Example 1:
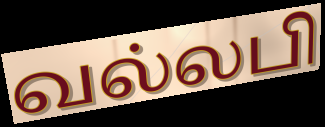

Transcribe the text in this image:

வல்லபி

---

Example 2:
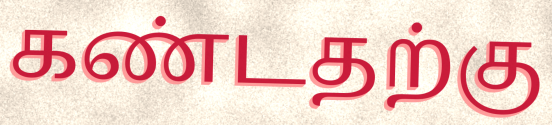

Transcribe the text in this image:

கண்டதற்கு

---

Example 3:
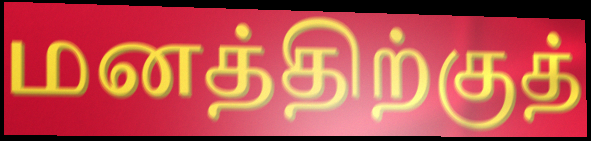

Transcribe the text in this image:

மனத்திற்குத்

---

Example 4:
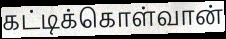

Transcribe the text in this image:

கட்டிக்கொள்வான்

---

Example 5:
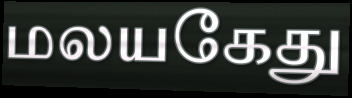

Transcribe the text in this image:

மலயகேது